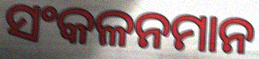
ସଂକଳନମାନ